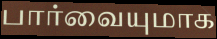
பார்வையுமாக